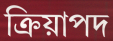
ক্রিয়াপদ